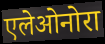
एलेओनोरा